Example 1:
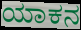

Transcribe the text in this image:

ಯಾಕನ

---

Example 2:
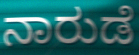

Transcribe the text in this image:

ನಾರುಡೆ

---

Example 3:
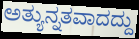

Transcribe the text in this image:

ಅತ್ಯುನ್ನತವಾದದ್ದು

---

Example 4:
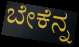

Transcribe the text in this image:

ಬೇಕೆನ್ನ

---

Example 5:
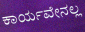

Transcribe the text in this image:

ಕಾರ್ಯವೇನಲ್ಲ